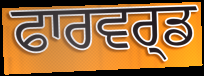
ਫਾਰਵਰ੍ਡ